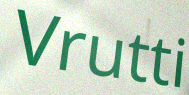
Vrutti